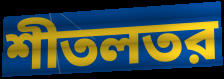
শীতলতর